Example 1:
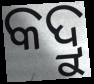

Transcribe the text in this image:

କଦ୍ରୁ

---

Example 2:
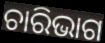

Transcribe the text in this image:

ଚାରିଭାଗ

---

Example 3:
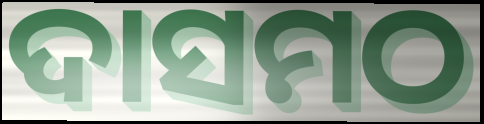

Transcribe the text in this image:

ଦାସମଠ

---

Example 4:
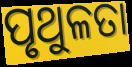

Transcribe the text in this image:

ପୃଥୁଳତା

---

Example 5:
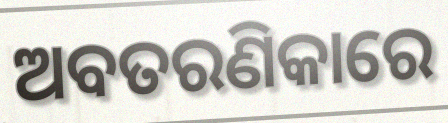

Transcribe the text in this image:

ଅବତରଣିକାରେ